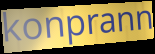
konprann